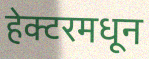
हेक्टरमधून